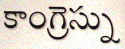
కాంగ్రెస్ను